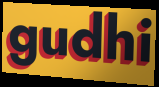
gudhi